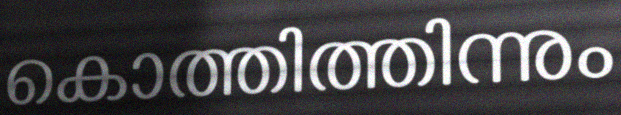
കൊത്തിത്തിന്നും